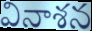
వినాశన